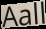
Aall